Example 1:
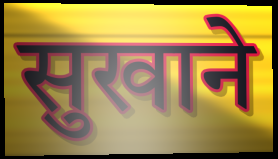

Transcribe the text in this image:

सुखाने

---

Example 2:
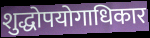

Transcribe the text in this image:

शुद्धोपयोगाधिकार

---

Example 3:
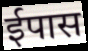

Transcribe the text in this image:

ईपास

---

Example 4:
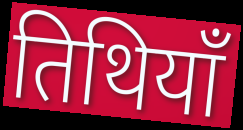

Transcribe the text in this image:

तिथियाँ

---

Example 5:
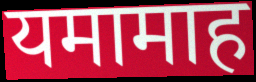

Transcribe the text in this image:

यमामाह